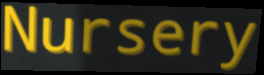
Nursery